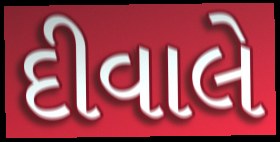
દીવાલે